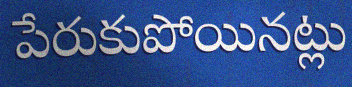
పేరుకుపోయినట్లు